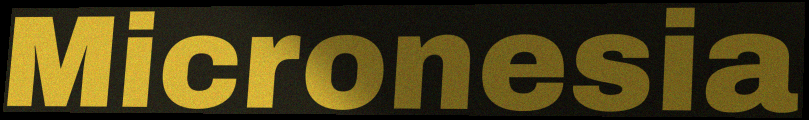
Micronesia